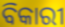
ବିକାରୀ